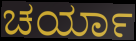
ಚರ್ಯಾ